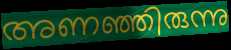
അണഞ്ഞിരുന്നു